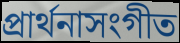
প্রার্থনাসংগীত